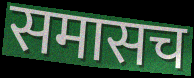
समासच